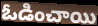
ఓడించాయి